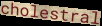
cholestral